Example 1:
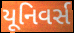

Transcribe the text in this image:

યૂનિવર્સ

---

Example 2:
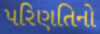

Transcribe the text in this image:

પરિણતિનો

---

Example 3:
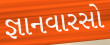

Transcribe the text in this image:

જ્ઞાનવારસો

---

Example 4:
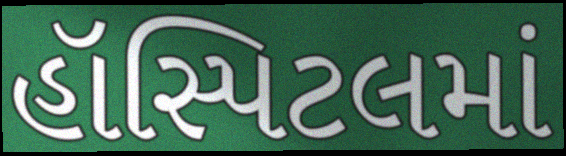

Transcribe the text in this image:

હૉસ્પિટલમાં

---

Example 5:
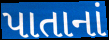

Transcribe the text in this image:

પાતાનાં